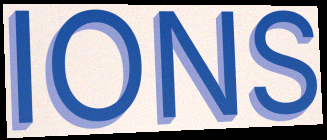
IONS